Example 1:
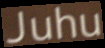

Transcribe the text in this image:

Juhu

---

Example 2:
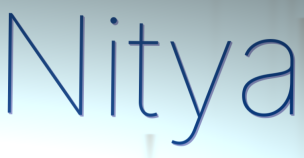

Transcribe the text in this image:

Nitya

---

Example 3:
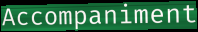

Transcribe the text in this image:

Accompaniment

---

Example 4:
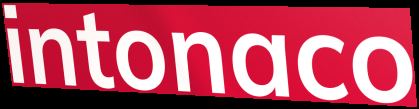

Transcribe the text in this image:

intonaco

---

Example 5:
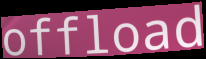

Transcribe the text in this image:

offload